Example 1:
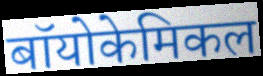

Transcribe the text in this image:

बॉयोकेमिकल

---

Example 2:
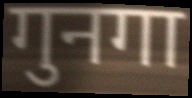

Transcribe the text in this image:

गुनगा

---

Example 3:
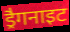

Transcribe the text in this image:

ड्रैगनाइट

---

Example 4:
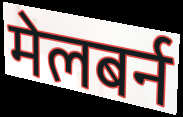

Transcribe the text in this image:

मेलबर्न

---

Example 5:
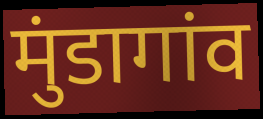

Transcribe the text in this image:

मुंडागांव